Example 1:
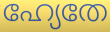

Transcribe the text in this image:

ഹ്യേതേ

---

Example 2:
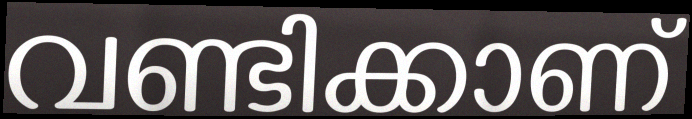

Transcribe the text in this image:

വണ്ടിക്കാണ്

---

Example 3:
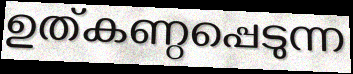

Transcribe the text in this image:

ഉത്കണ്ഠപ്പെടുന്ന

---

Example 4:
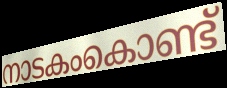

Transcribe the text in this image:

നാടകംകൊണ്ട്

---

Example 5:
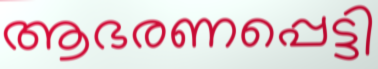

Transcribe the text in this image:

ആഭരണപ്പെട്ടി